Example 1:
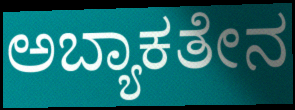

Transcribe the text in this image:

ಅಬ್ಯಾಕತೇನ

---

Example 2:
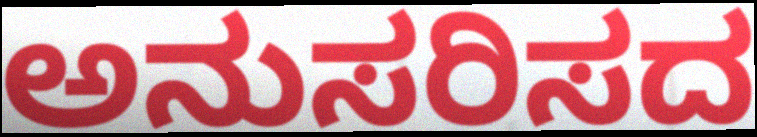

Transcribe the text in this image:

ಅನುಸರಿಸದ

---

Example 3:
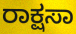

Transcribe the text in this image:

ರಾಕ್ಷಸಾ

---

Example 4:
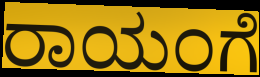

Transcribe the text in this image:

ರಾಯಂಗೆ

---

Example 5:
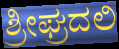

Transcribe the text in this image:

ಶ್ರೀಘ್ರದಲಿ